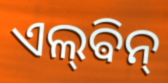
ଏଲ୍‌ଵିନ୍